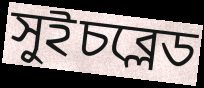
সুইচব্লেড